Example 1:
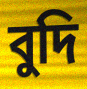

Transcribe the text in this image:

বুদি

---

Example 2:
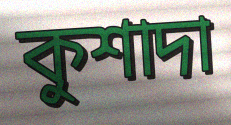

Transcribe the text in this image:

কুশাদা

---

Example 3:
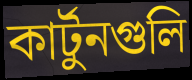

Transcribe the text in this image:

কার্টুনগুলি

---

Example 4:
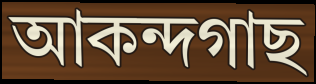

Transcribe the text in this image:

আকন্দগাছ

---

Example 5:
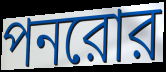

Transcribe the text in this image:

পনরোর